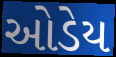
ઓડેય